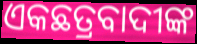
ଏକଛତ୍ରବାଦୀଙ୍କ